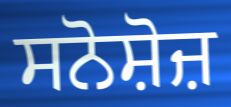
ਸਨੋਸ਼ੋਜ਼